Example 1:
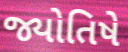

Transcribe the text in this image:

જ્યોતિષે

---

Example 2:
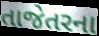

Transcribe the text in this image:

તાજેતરના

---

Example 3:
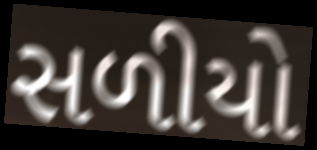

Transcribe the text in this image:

સળીયો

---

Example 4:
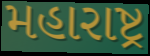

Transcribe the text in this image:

મહારાષ્ટ્ર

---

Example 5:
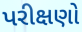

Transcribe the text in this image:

પરીક્ષણો